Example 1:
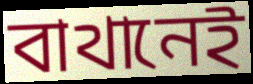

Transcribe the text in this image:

বাথানেই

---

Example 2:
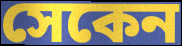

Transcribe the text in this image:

সেকেন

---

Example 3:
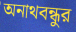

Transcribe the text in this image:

অনাথবন্ধুর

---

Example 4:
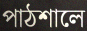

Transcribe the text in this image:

পাঠশালে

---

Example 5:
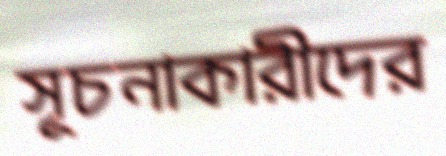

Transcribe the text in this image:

সূচনাকারীদের